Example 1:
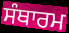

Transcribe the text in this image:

ਸੰਥਾਰਮ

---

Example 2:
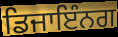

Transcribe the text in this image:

ਡਿਜਾਇੰਨਗ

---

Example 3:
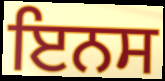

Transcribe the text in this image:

ਇਨਸ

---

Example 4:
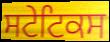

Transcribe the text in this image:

ਸਟੇਟਿਕਸ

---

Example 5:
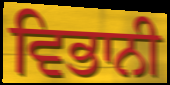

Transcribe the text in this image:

ਵਿਭਾਨੀ